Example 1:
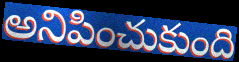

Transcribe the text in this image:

అనిపించుకుంది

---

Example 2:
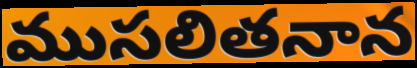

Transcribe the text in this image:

ముసలితనాన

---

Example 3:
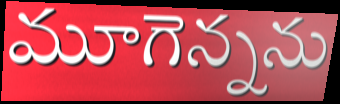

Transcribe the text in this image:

మూగెన్నను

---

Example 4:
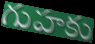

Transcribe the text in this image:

గుహకు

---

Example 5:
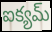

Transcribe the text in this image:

ఐక్యమ్